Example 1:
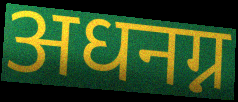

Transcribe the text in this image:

अधनग्न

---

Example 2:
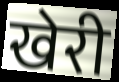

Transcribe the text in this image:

खेरी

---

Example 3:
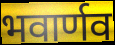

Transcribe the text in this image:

भवार्णव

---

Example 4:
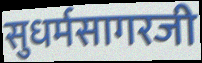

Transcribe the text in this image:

सुधर्मसागरजी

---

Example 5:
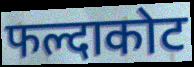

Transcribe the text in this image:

फल्दाकोट